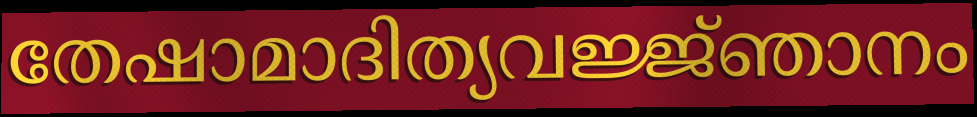
തേഷാമാദിത്യവജ്ജ്ഞാനം